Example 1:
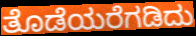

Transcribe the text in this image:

ತೊಡೆಯರೆಗಡಿದು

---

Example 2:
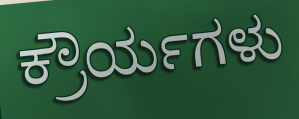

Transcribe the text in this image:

ಕ್ರೌರ್ಯಗಳು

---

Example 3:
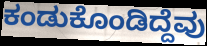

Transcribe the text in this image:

ಕಂಡುಕೊಂಡಿದ್ದೆವು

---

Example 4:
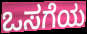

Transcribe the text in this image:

ಒಸಗೆಯ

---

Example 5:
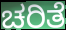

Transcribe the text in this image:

ಚರಿತೆ